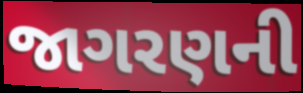
જાગરણની